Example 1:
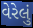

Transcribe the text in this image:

વેરેલું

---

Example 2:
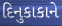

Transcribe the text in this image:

દિનુકાકાને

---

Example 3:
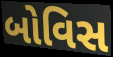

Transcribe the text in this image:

બોવિસ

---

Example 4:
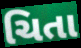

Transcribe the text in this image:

ચિતા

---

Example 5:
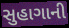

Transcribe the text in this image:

સુહાગાની